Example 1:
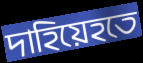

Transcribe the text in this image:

দাহিয়েহতে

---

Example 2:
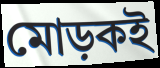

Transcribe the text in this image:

মোড়কই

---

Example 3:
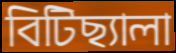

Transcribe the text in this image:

বিটিছ্যালা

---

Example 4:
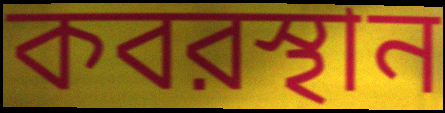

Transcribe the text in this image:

কবরস্থান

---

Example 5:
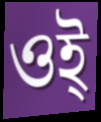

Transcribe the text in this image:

ওই্